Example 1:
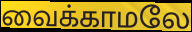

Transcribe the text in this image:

வைக்காமலே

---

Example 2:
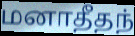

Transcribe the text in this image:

மனாதீதந்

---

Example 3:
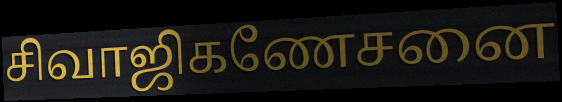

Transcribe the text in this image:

சிவாஜிகணேசனை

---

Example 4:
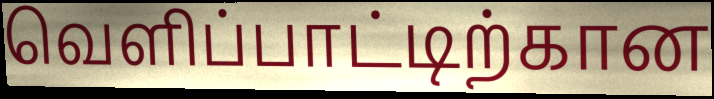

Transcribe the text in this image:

வெளிப்பாட்டிற்கான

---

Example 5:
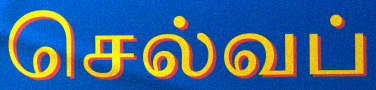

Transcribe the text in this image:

செல்வப்